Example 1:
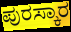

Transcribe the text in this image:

ಪುರಸ್ಕಾರ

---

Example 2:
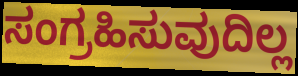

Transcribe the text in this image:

ಸಂಗ್ರಹಿಸುವುದಿಲ್ಲ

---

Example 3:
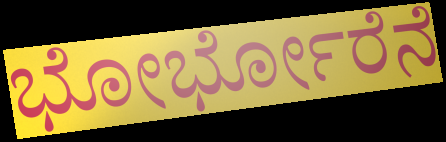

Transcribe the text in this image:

ಭೋರ್ಭೋರೆನೆ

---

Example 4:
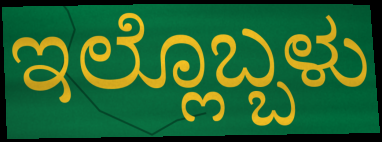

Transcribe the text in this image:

ಇಲ್ಲೊಬ್ಬಳು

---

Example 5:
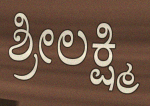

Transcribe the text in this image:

ಶ್ರೀಲಕ್ಷ್ಮಿ